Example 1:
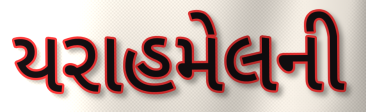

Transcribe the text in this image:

યરાહમેલની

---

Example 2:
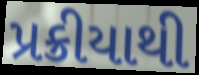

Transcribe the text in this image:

પ્રક્રીયાથી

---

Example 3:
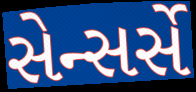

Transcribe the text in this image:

સેન્સર્સે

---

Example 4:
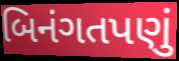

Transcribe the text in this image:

બિનંગતપણું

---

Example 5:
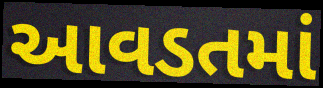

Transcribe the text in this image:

આવડતમાં